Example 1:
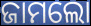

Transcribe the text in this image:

ଜାମଲୋ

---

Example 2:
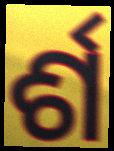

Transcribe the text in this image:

ର୍ଶ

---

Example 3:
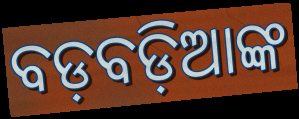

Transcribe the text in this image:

ବଡ଼ବଡ଼ିଆଙ୍କ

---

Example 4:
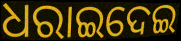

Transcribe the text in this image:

ଧରାଇଦେଇ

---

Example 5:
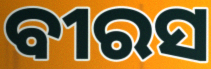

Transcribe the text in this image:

ବୀରସ